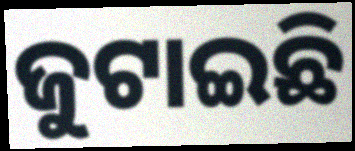
ଜୁଟାଇଛି